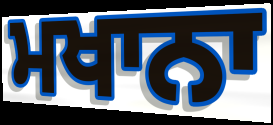
ਮਖਾਨਾ